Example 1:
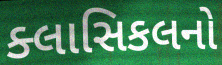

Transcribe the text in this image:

ક્લાસિકલનો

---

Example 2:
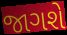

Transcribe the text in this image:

જાગશે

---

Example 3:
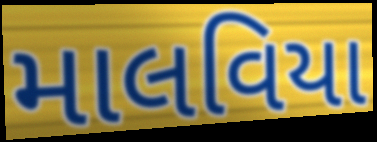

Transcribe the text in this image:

માલવિયા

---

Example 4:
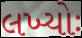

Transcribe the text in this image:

લખ્યોઃ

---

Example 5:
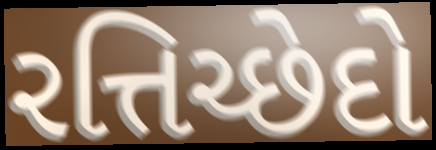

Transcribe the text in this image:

રત્તિચ્છેદો